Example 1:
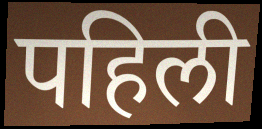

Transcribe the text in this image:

पहिली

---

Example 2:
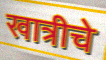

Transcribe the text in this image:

खात्रीचे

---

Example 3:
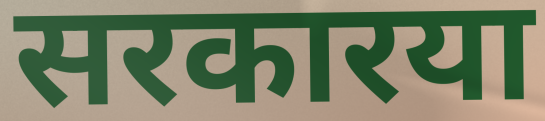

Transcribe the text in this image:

सरकारया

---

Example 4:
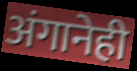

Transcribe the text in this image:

अंगानेही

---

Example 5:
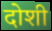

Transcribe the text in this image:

दोशी